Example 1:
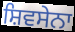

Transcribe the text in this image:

ਸ਼ਿਵਸੇਨਾ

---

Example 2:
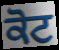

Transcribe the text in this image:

ਕੋਟ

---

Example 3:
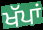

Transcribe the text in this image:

ਖੱਪਾਂ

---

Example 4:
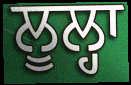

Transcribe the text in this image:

ਲੂਲ੍ਹਾ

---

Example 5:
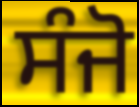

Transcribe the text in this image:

ਸੰਜੋ